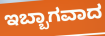
ಇಬ್ಬಾಗವಾದ